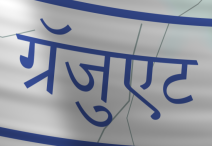
ग्रॅजुएट